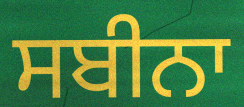
ਸਬੀਨਾ